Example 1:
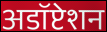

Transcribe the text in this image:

अडॉप्टेशन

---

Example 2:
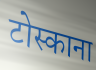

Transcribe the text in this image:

टोस्काना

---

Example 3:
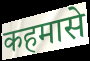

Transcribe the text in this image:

कहमासे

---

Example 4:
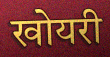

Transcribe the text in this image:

खोयरी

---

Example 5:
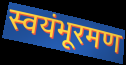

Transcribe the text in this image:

स्वयंभूरमण